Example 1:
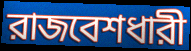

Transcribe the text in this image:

রাজবেশধারী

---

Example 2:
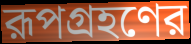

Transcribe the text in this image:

রূপগ্রহণের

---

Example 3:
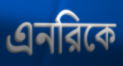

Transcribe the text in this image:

এনরিকে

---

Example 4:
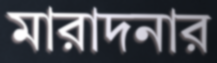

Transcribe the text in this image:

মারাদনার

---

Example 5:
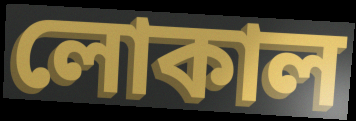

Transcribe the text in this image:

লোকাল